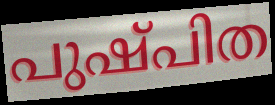
പുഷ്പിത